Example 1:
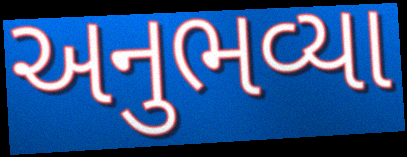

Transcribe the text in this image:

અનુભવ્યા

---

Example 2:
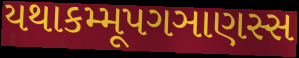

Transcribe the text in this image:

યથાકમ્મૂપગઞાણસ્સ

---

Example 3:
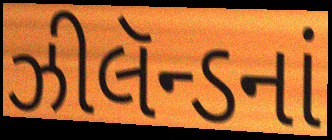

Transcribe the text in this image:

ઝીલૅન્ડનાં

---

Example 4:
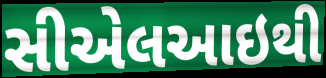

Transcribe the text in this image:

સીએલઆઇથી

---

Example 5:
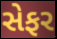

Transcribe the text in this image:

સેફર